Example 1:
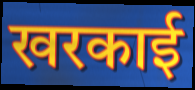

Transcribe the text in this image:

खरकाई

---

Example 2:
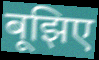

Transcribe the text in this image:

बूझिए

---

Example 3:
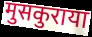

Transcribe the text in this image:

मुसकुराया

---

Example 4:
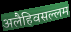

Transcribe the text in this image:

अलैहिवसल्लम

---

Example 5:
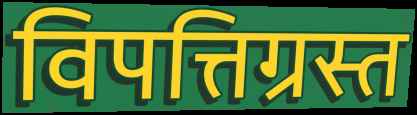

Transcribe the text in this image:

विपत्तिग्रस्त